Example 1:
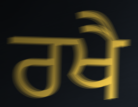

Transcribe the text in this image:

ਰਖੈ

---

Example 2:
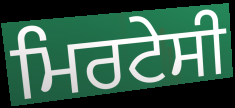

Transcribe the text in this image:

ਮਿਰਟੇਸੀ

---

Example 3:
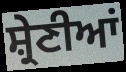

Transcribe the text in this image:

ਸ਼੍ਰੇਣੀਆਂ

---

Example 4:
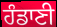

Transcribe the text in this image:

ਹੰਡਾਣੀ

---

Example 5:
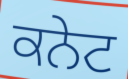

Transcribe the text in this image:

ਕਨੇਟ